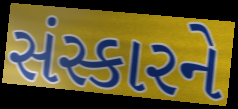
સંસ્કારને